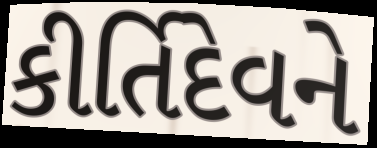
કીર્તિદેવને